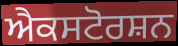
ਐਕਸਟੋਰਸ਼ਨ